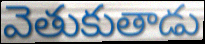
వెతుకుతాడు